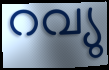
റവ്യു